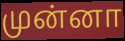
முன்னா